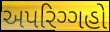
અપરિગ્ગહો